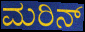
ಮರಿನ್